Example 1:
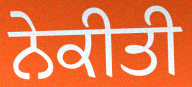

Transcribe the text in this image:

ਨੇਕੀਤੀ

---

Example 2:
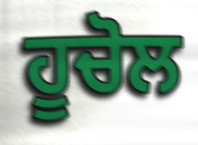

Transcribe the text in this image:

ਹੂਚੋਲ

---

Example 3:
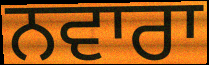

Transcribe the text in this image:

ਨਵਾਰਾ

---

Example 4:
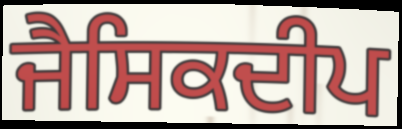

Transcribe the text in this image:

ਜੈਸਿਕਦੀਪ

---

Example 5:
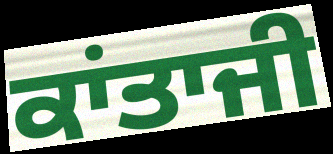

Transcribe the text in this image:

ਕਾਂਤਾਜੀ